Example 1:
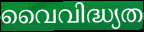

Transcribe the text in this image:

വൈവിദ്ധ്യത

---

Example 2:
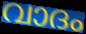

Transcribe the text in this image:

വാദം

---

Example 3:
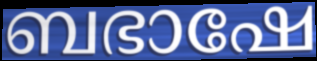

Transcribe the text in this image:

ബഭാഷേ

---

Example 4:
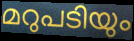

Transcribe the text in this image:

മറുപടിയും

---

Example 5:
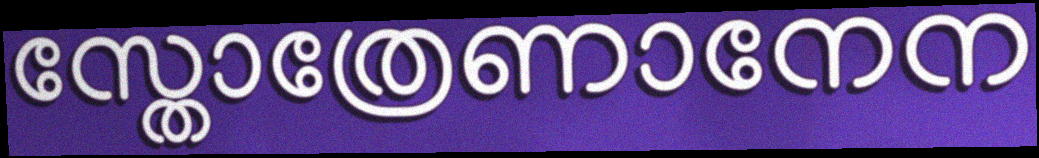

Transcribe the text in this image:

സ്തോത്രേണാനേന